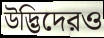
উদ্ভিদেরও